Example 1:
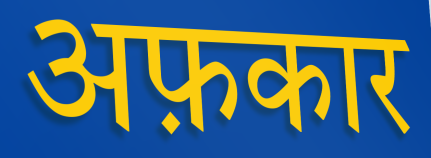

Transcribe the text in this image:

अफ़कार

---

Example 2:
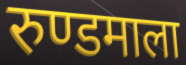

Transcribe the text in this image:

रुण्डमाला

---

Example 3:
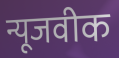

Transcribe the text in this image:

न्यूजवीक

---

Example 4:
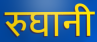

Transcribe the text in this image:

रुघानी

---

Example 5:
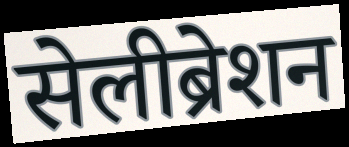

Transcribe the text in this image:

सेलीब्रेशन